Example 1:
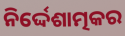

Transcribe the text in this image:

ନିର୍ଦ୍ଦେଶାତ୍ମକର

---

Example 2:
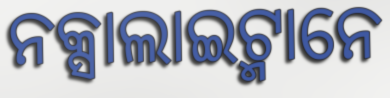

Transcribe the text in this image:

ନକ୍ସାଲାଇଟ୍ମାନେ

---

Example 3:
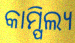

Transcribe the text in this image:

କାମ୍ପିଲ୍ୟ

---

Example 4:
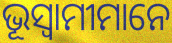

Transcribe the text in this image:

ଭୂସ୍ୱାମୀମାନେ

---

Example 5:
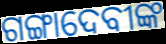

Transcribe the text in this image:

ଗଙ୍ଗାଦେବୀଙ୍କ